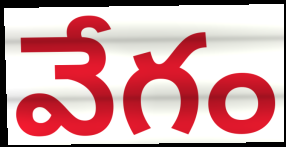
వేగం